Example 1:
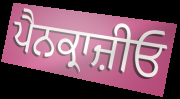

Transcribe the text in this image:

ਪੈਨਕ੍ਰਾਜ਼ੀਓ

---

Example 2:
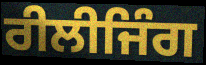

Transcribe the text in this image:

ਰੀਲੀਜਿੰਗ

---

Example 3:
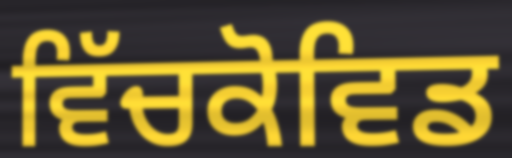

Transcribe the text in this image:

ਵਿੱਚਕੋਵਿਡ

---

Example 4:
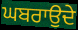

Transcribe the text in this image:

ਘਬਰਾਉਦੇ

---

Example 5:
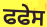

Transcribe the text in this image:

ਫਫੇਸ